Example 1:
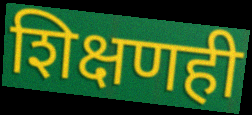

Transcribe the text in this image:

शिक्षणही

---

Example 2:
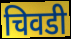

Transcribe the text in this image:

चिवडी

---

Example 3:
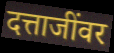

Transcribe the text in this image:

दत्ताजींवर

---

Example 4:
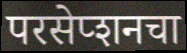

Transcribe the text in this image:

परसेप्शनचा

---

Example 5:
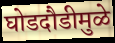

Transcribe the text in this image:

घोडदौडीमुळे